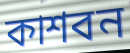
কাশবন